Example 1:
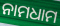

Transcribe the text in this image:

ନାମଧାମ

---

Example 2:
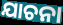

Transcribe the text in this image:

ଯାଚନା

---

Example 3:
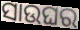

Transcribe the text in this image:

ସାଉଘର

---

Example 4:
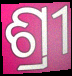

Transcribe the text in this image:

ଶ୍ରୀ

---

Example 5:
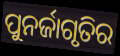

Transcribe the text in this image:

ପୁନର୍ଜାଗୃତିର